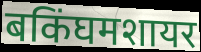
बकिंघमशायर